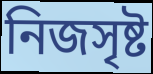
নিজসৃষ্ট